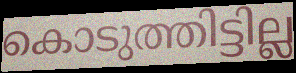
കൊടുത്തിട്ടില്ല